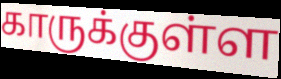
காருக்குள்ள